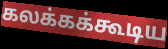
கலக்கக்கூடிய